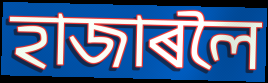
হাজাৰলৈ